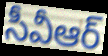
సీవీఆర్